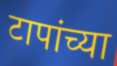
टापांच्या